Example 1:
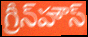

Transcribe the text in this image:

గ్రీన్‌హౌస్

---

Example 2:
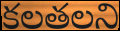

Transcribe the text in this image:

కలతలని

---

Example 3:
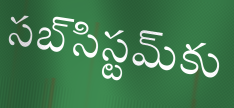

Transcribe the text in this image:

సబ్‌సిస్టమ్‌కు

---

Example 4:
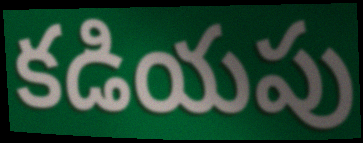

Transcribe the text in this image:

కడియపు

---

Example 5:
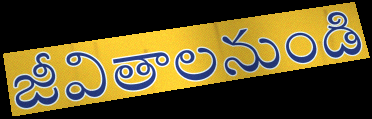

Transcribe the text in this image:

జీవితాలనుండి